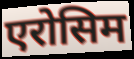
एरोसिम